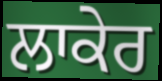
ਲਾਕੇਰ